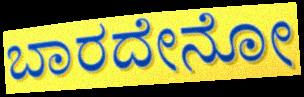
ಬಾರದೇನೋ